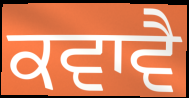
ਕਵਾਵੈ